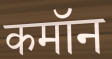
कमॉन